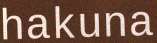
hakuna